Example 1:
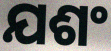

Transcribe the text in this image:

ଯଶଂ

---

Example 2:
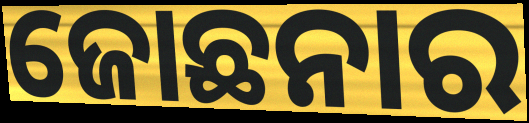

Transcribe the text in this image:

ଜୋଛନାର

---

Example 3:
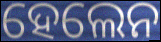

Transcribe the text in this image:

ହେଲେନ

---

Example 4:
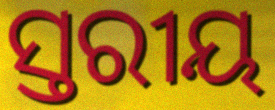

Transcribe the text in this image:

ସ୍ତରୀୟ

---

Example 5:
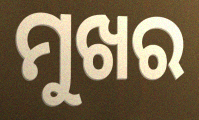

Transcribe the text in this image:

ମୁଖର